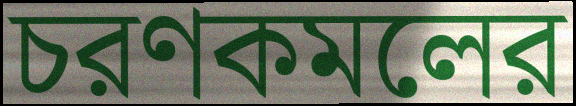
চরণকমলের